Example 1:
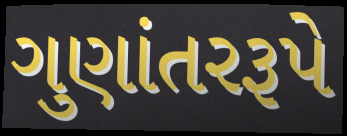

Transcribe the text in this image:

ગુણાંતરરૂપે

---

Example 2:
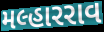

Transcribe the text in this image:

મલ્હારરાવ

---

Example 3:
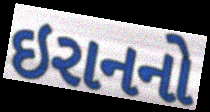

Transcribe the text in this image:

ઇરાનનો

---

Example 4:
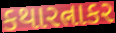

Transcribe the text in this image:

કથારત્નાકર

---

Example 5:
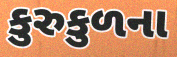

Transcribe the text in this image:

કુરુકુળના